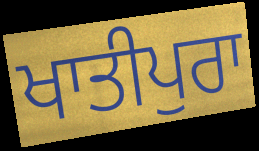
ਖਾਤੀਪੁਰਾ